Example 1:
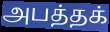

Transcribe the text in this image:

அபத்தக்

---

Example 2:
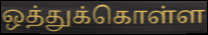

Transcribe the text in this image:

ஒத்துக்கொள்ள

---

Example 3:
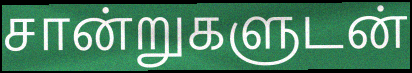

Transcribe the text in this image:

சான்றுகளுடன்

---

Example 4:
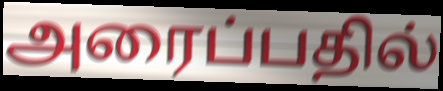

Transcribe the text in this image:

அரைப்பதில்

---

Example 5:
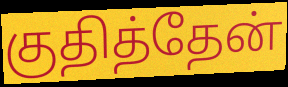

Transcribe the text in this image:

குதித்தேன்